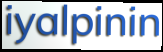
iyalpinin